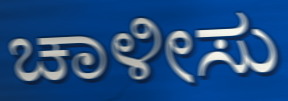
ಚಾಳೀಸು